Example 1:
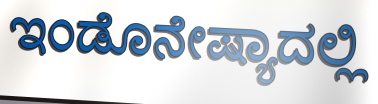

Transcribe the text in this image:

ಇಂಡೊನೇಷ್ಯಾದಲ್ಲಿ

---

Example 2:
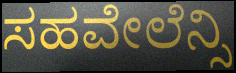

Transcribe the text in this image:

ಸಹವೇಲೆನ್ಸಿ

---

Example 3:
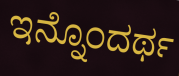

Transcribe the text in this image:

ಇನ್ನೊಂದರ್ಥ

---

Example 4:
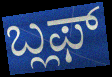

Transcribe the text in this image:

ಬ್ಲಫ್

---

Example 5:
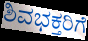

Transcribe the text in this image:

ಶಿವಭಕ್ತರಿಗೆ